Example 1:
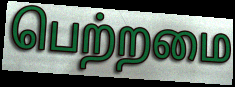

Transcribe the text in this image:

பெற்றமை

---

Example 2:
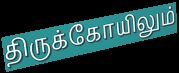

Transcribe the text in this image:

திருக்கோயிலும்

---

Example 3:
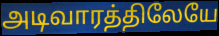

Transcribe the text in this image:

அடிவாரத்திலேயே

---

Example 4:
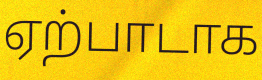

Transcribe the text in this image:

ஏற்பாடாக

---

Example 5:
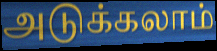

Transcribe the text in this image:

அடுக்கலாம்